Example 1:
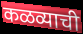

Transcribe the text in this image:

कळव्याची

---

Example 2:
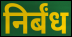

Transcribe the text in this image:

निर्बंध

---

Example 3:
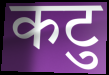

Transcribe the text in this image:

कटु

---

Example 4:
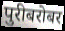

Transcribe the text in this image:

पुरीबरोबर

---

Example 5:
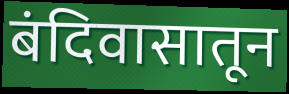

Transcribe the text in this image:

बंदिवासातून